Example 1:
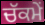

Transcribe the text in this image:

ਚੱਕਮੇਂ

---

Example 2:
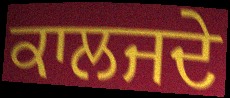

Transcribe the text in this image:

ਕਾਲਜਦੇ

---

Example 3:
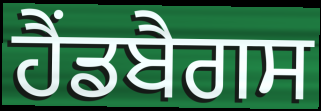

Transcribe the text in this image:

ਹੈਂਡਬੈਗਸ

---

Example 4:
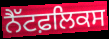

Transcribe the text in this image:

ਨੈੱਟਫ਼ਲਿਕਸ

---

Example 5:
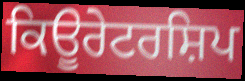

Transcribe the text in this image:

ਕਿਊਰੇਟਰਸ਼ਿਪ